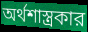
অর্থশাস্ত্রকার